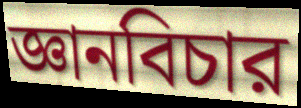
জ্ঞানবিচার